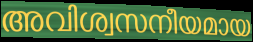
അവിശ്വസനീയമായ